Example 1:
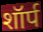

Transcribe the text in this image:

शॉर्प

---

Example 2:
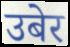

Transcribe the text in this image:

उबेर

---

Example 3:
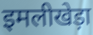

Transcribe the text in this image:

इमलीखेड़ा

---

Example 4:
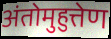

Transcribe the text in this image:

अंतोमुहुत्तेण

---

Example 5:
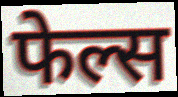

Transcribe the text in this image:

फेल्स